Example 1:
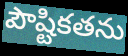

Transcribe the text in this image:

పౌష్టికతను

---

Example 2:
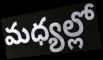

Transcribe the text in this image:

మధ్యల్లో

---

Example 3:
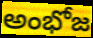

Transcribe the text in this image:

అంభోజ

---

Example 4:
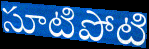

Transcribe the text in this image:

సూటిపోటి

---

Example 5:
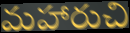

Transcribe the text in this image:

మహారుచి